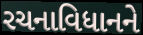
રચનાવિધાનને